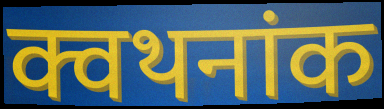
क्वथनांक